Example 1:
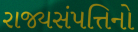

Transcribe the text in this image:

રાજ્યસંપત્તિનો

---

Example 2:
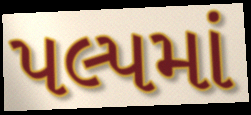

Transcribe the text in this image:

પલ્પમાં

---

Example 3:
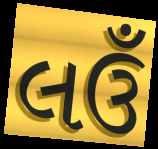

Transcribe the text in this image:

લઉઁ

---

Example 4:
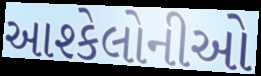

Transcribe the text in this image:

આશ્કેલોનીઓ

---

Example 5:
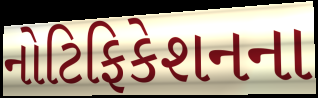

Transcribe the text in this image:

નોટિફિકેશનના